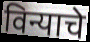
विन्याचे